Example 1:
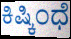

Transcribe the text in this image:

ಕಿಷ್ಕಿಂಧೆ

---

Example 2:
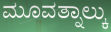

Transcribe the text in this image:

ಮೂವತ್ನಾಲ್ಕು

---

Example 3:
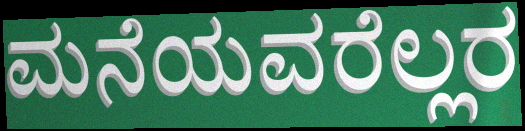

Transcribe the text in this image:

ಮನೆಯವರೆಲ್ಲರ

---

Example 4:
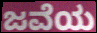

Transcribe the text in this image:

ಜವೆಯ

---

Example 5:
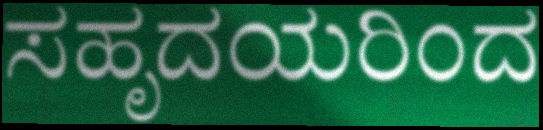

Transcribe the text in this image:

ಸಹೃದಯರಿಂದ